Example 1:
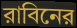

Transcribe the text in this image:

রাবিনের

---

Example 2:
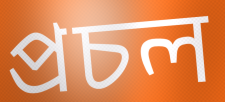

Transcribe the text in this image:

প্রচল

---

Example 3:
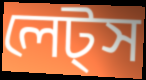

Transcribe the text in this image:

লেট্‌স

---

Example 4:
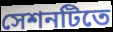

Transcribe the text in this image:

সেশনটিতে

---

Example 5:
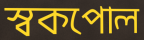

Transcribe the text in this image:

স্বকপোল